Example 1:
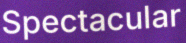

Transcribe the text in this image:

Spectacular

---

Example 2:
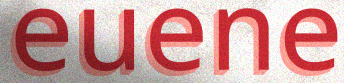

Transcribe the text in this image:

euene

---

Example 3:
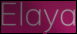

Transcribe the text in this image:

Elaya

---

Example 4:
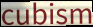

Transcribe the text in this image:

cubism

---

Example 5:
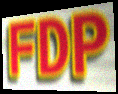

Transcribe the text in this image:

FDP